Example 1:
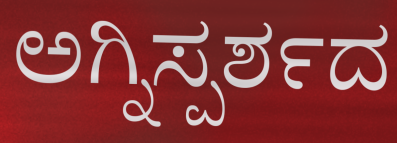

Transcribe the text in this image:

ಅಗ್ನಿಸ್ಪರ್ಶದ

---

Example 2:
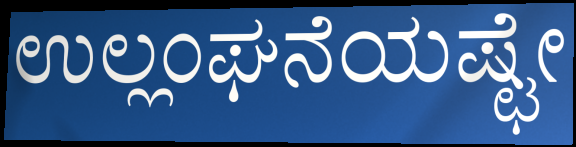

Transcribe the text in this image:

ಉಲ್ಲಂಘನೆಯಷ್ಟೇ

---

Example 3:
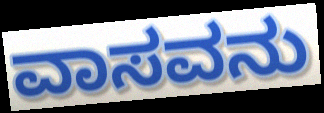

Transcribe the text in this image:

ವಾಸವನು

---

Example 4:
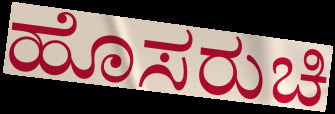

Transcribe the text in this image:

ಹೊಸರುಚಿ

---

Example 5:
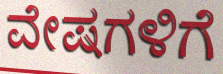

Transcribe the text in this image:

ವೇಷಗಳಿಗೆ